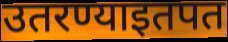
उतरण्याइतपत